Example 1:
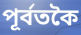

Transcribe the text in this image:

পূৰ্বতকৈ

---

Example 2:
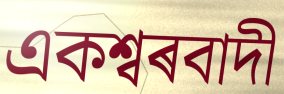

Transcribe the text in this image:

একশ্বৰবাদী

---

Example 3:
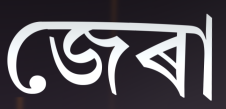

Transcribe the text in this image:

জেৰা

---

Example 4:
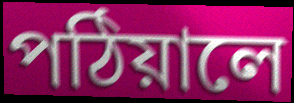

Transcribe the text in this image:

পঠিয়ালে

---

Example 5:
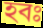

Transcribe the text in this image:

হবঃ